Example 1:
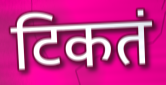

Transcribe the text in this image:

टिकतं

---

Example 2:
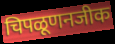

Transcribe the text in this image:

चिपळूणनजीक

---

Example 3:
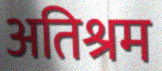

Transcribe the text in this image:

अतिश्रम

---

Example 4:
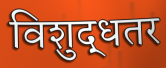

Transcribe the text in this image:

विशुद्धतर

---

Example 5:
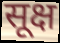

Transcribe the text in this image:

सूक्ष